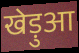
खेड़ुआ